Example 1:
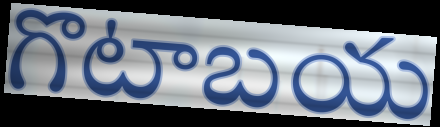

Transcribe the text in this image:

గొటాబయ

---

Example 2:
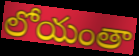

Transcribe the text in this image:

లోయంతా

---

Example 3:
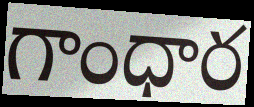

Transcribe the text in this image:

గాంధార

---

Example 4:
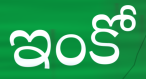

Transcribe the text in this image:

ఇంకో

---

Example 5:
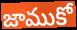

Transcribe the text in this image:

జాముకో